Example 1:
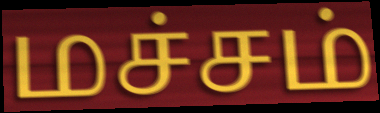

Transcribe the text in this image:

மச்சம்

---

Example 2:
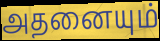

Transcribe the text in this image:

அதனையும்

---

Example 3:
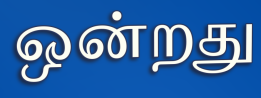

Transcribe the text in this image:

ஒன்றது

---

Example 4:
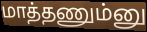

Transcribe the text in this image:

மாத்தணும்னு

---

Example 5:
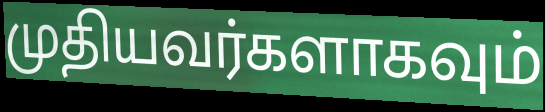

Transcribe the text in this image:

முதியவர்களாகவும்